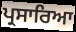
ਪ੍ਰਸਾਰਿਆ